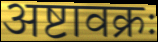
अष्टावक्रः